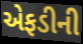
એફડીની